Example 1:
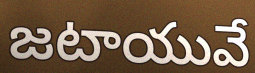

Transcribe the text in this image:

జటాయువే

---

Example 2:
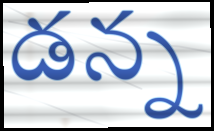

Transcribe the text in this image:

డన్న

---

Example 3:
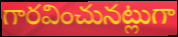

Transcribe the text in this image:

గారవించునట్లుగా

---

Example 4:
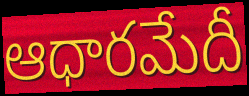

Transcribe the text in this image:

ఆధారమేదీ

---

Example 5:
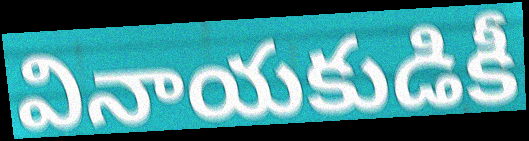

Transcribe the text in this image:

వినాయకుడికీ